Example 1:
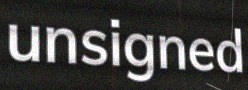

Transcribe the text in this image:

unsigned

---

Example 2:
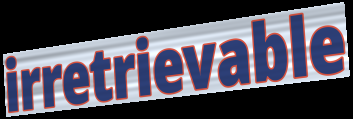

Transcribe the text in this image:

irretrievable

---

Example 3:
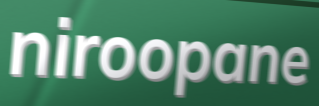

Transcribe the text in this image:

niroopane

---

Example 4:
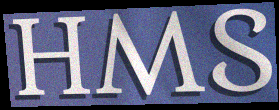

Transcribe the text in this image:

HMS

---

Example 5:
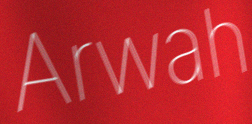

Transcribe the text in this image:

Arwah